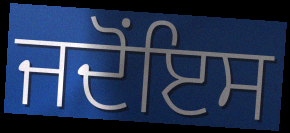
ਜਦੋਂਇਸ